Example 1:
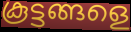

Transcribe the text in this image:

കൂട്ടങ്ങളെ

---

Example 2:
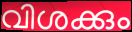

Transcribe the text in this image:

വിശക്കും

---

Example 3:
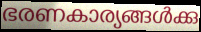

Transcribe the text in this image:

ഭരണകാര്യങ്ങൾക്കു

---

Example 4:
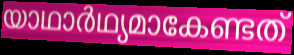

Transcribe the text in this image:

യാഥാർഥ്യമാകേണ്ടത്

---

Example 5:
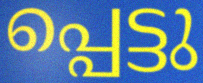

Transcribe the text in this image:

പ്പെട്ടു